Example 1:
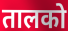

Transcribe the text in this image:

तालको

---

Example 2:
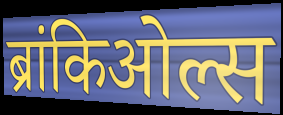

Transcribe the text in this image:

ब्रांकिओल्स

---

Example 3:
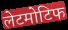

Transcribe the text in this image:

लेटमोटिफ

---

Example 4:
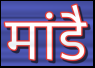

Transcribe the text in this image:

मांडै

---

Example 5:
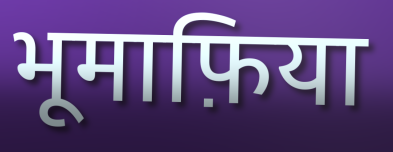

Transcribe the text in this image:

भूमाफ़िया